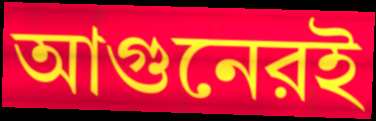
আগুনেরই